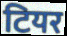
टियर